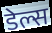
डेल्स